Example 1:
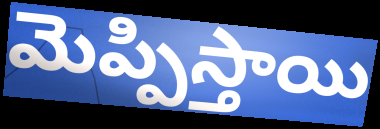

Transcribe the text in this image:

మెప్పిస్తాయి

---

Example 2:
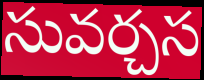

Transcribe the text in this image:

సువర్చస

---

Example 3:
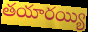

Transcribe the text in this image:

తయారయ్యి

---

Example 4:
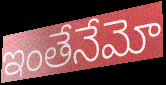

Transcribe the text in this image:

ఇంతేనేమో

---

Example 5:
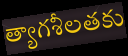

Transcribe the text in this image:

త్యాగశీలతకు